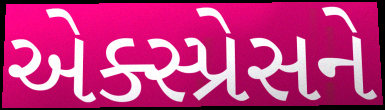
એક્સ્પ્રેસને